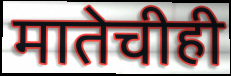
मातेचीही